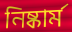
নিষ্কার্ম